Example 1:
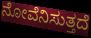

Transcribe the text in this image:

ನೋವೆನಿಸುತ್ತದೆ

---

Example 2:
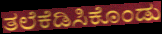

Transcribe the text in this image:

ತಲೆಕೆಡಿಸಿಕೊಂಡು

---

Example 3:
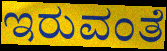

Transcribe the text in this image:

ಇರುವಂತೆ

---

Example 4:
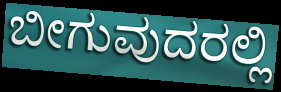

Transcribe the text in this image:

ಬೀಗುವುದರಲ್ಲಿ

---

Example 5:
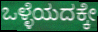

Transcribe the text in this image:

ಒಳ್ಳೆಯದಕ್ಕೇ